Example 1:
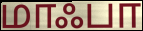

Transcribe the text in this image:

மாஃபா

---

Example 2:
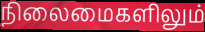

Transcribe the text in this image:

நிலைமைகளிலும்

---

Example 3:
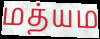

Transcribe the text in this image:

மத்யம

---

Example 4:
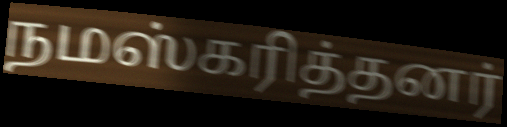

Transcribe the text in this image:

நமஸ்கரித்தனர்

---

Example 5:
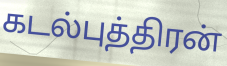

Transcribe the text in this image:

கடல்புத்திரன்